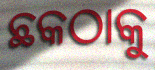
ଛକଠାକୁ